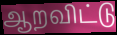
ஆறவிட்டு